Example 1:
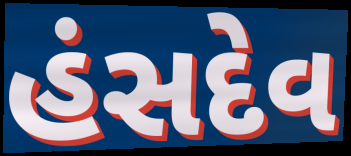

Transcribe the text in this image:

હંસદેવ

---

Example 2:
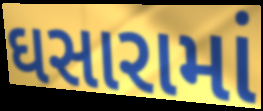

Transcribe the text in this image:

ઘસારામાં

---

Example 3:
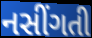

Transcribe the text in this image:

નસીંગતી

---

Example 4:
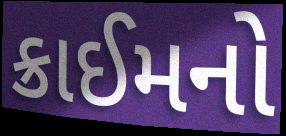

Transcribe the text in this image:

ક્રાઈમનો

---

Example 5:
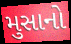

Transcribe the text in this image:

મુસાનો